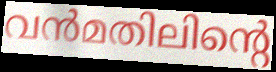
വൻമതിലിന്റെ